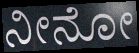
ನೀನೋ